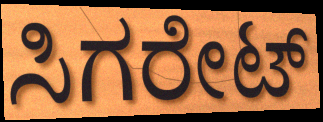
ಸಿಗರೇಟ್